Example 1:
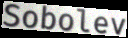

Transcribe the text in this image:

Sobolev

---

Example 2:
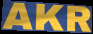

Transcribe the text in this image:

AKR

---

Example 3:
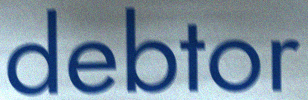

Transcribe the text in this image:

debtor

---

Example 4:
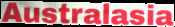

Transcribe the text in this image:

Australasia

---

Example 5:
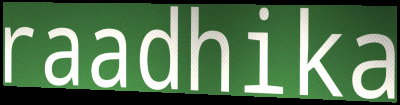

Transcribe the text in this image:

raadhika